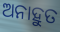
ଅନାହୁତ